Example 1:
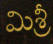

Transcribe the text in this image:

మిశ్రీ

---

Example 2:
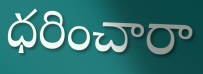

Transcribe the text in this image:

ధరించారా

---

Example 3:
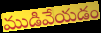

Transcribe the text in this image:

ముడివేయడం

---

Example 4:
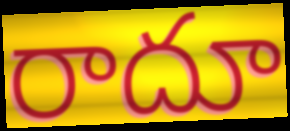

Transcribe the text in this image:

రాదూ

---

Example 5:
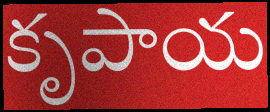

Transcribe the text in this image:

కృపాయ